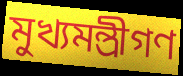
মুখ্যমন্ত্রীগণ